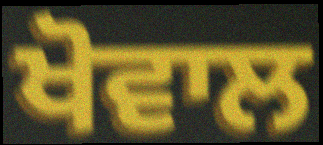
ਖੋਵਾਲ